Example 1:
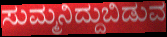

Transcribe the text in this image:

ಸುಮ್ಮನಿದ್ದುಬಿಡುವ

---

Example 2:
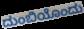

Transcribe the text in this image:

ದುಂಬಿಯೊಂದು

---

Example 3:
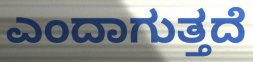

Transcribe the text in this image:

ಎಂದಾಗುತ್ತದೆ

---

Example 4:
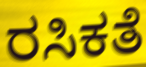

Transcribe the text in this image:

ರಸಿಕತೆ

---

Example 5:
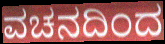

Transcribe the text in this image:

ವಚನದಿಂದ